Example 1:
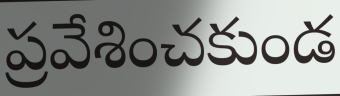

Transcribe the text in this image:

ప్రవేశించకుండ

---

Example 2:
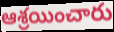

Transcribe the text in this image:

ఆశ్రయించారు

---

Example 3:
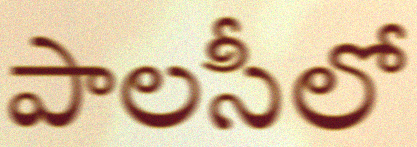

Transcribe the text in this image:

పాలసీలో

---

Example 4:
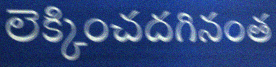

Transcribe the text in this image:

లెక్కించదగినంత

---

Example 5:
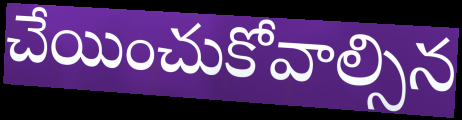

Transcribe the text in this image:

చేయించుకోవాల్సిన